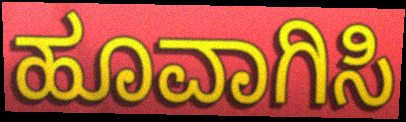
ಹೂವಾಗಿಸಿ